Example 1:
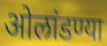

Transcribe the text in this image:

ओलांडण्या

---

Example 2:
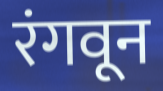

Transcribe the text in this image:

रंगवून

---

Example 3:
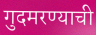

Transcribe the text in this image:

गुदमरण्याची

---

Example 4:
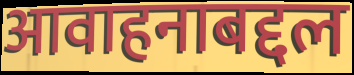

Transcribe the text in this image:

आवाहनाबद्दल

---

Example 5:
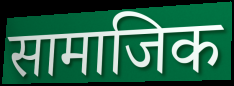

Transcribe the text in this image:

सामाजिक